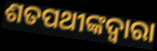
ଶତପଥୀଙ୍କଦ୍ୱାରା